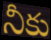
నీకు